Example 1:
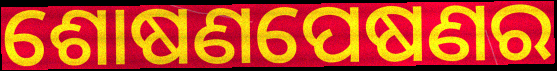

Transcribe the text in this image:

ଶୋଷଣପେଷଣର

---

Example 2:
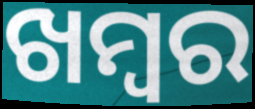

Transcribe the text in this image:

ଖମ୍ବର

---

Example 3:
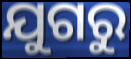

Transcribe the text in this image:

ଯୁଗରୁ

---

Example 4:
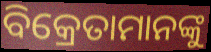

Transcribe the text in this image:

ବିକ୍ରେତାମାନଙ୍କୁ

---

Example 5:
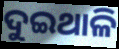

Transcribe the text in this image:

ଦୁଇଥାଳି